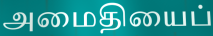
அமைதியைப்